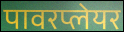
पावरप्लेयर